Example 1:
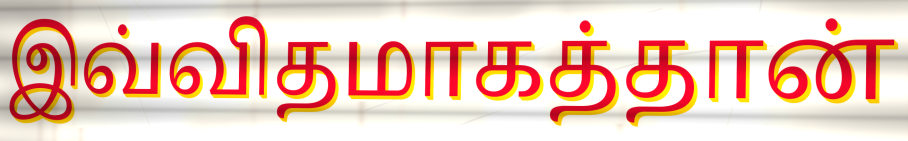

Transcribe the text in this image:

இவ்விதமாகத்தான்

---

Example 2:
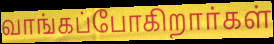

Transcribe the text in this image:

வாங்கப்போகிறார்கள்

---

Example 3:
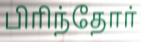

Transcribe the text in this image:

பிரிந்தோர்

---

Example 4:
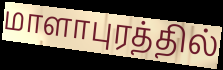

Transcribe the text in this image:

மாளாபுரத்தில்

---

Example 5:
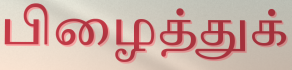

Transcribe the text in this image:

பிழைத்துக்